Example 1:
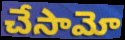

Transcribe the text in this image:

చేసామో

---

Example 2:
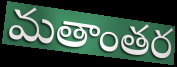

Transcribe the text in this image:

మతాంతర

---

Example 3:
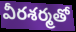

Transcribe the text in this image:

వీరశర్మతో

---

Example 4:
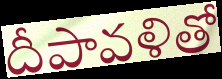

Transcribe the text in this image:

దీపావళితో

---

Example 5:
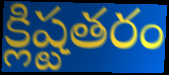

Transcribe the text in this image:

క్లిష్టతరం